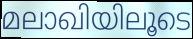
മലാഖിയിലൂടെ